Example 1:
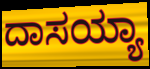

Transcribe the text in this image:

ದಾಸಯ್ಯಾ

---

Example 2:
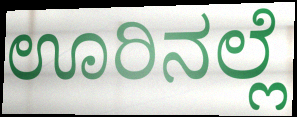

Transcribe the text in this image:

ಊರಿನಲ್ಲೆ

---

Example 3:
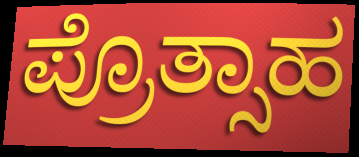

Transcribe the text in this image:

ಪ್ರೊತ್ಸಾಹ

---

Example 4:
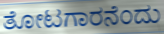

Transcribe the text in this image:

ತೋಟಗಾರನೆಂದು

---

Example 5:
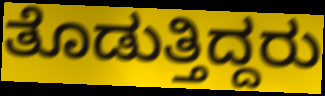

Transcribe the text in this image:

ತೊಡುತ್ತಿದ್ದರು